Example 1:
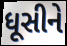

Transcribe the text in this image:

ધૂસીને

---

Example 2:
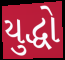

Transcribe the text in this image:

યુદ્ધો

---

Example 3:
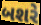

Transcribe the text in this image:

બશરે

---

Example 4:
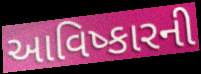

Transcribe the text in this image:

આવિષ્કારની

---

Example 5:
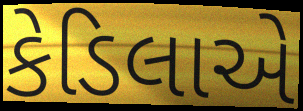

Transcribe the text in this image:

કેડિલાએ